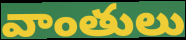
వాంతులు